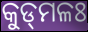
କୁଡ୍‌ମଳଃ